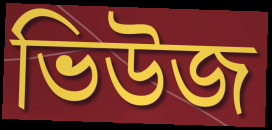
ভিউজ